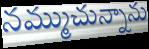
నమ్ముచున్నాను